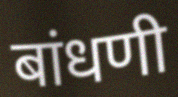
बांधणी